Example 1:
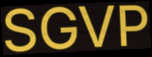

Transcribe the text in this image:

SGVP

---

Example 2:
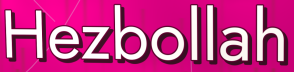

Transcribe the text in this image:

Hezbollah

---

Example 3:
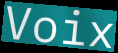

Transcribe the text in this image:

Voix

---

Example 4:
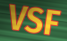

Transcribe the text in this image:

VSF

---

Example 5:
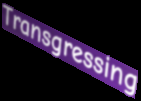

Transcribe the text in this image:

Transgressing